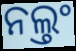
ନଲ୍ତଂ